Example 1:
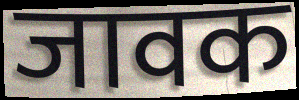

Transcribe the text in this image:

जावक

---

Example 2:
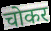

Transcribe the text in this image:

चोकर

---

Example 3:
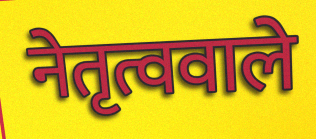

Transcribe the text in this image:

नेतृत्ववाले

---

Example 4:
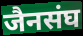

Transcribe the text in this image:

जैनसंघ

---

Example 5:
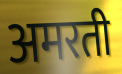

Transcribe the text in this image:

अमरती